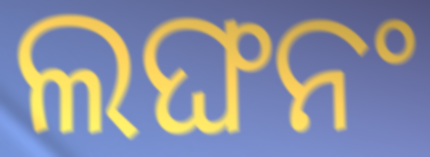
ଲଙ୍ଘନଂ